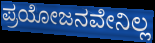
ಪ್ರಯೋಜನವೇನಿಲ್ಲ